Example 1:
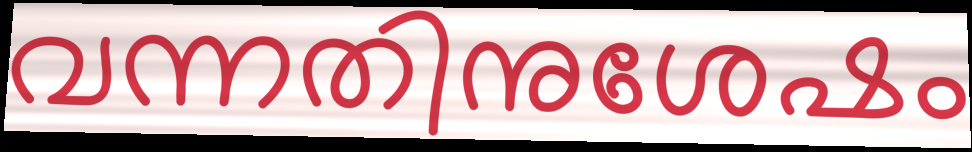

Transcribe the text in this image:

വന്നതിനുശേഷം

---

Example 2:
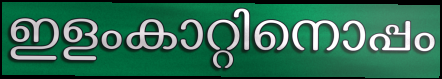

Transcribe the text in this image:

ഇളംകാറ്റിനൊപ്പം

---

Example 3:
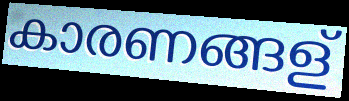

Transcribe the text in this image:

കാരണങ്ങള്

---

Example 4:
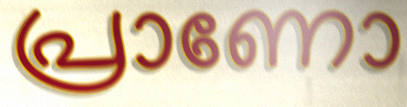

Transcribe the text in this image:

പ്രാണോ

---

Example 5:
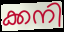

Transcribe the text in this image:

ക്കനി